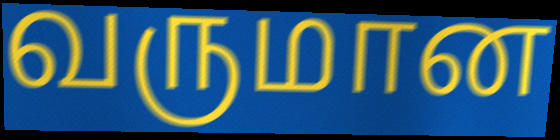
வருமான